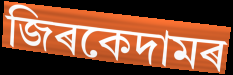
জিৰকেদামৰ